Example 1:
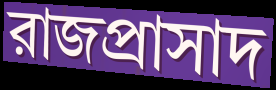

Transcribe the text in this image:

রাজপ্রাসাদ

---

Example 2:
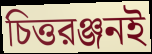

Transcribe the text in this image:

চিত্তরঞ্জনই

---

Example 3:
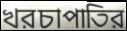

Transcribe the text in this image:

খরচাপাতির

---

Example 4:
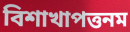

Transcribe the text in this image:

বিশাখাপত্তনম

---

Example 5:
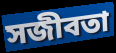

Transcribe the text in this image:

সজীবতা